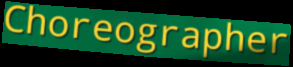
Choreographer